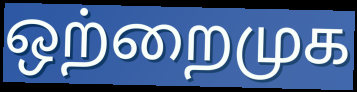
ஒற்றைமுக